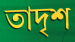
তাদৃশ